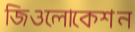
জিওলোকেশন